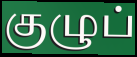
குழுப்